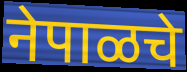
नेपाळचे